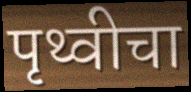
पृथ्वीचा